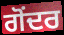
ਗੋਂਦਰ